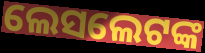
ଲେସଲେଟଙ୍କ